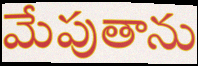
మేపుతాను